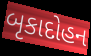
બૃકાદોહન